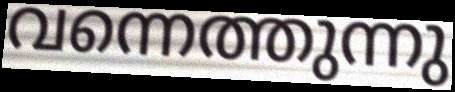
വന്നെത്തുന്നു